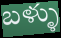
బళ్ళు